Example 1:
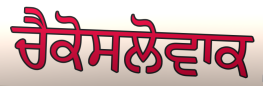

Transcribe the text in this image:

ਚੈਕੋਸਲੋਵਾਕ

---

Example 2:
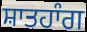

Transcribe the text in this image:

ਸ਼ਾਤਹਾੰਗ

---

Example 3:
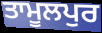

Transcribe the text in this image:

ਤਾਮੂਲਪੁਰ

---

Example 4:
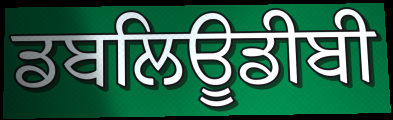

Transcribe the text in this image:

ਡਬਲਿਊਡੀਬੀ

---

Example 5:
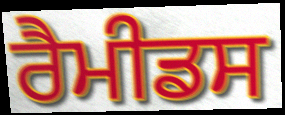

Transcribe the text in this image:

ਰੈਮੀਡਸ